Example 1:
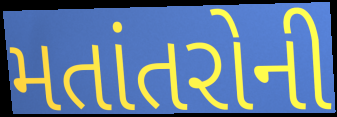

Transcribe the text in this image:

મતાંતરોની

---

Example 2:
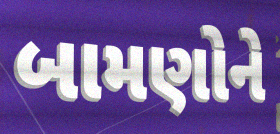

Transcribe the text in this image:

બામણોને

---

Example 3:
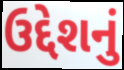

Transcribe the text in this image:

ઉદ્દેશનું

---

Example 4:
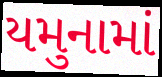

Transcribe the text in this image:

યમુનામાં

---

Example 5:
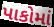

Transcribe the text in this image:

પાકોમાં